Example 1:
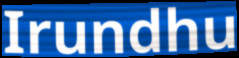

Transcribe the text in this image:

Irundhu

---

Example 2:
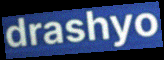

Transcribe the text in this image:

drashyo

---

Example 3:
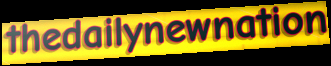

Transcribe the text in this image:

thedailynewnation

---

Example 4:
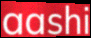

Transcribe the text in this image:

aashi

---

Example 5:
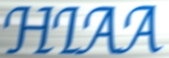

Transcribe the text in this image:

HIAA